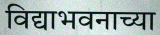
विद्याभवनाच्या